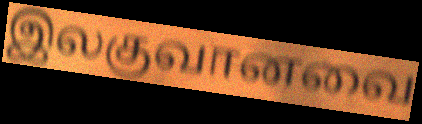
இலகுவானவை